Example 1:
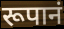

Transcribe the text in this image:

रूपानं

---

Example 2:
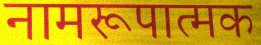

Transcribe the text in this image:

नामरूपात्मक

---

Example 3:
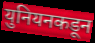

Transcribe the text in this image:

युनियनकडून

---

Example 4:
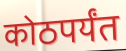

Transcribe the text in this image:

कोठपर्यंत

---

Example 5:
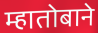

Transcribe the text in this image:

म्हातोबाने